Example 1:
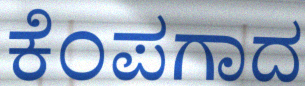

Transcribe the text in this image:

ಕೆಂಪಗಾದ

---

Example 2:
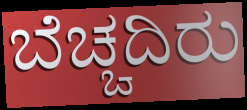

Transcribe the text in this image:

ಬೆಚ್ಚದಿರು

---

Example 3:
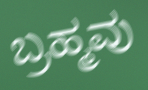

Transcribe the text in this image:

ಬ್ರಹ್ಮವು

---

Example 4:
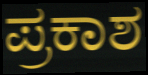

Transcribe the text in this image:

ಪ್ರಕಾಶ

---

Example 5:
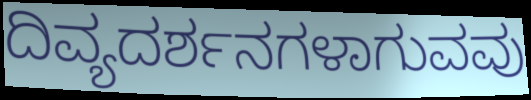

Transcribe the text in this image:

ದಿವ್ಯದರ್ಶನಗಳಾಗುವವು